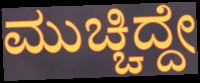
ಮುಚ್ಚಿದ್ದೇ